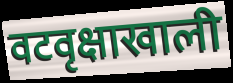
वटवृक्षाखाली